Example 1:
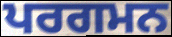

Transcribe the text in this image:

ਪਰਗਮਨ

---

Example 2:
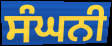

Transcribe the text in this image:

ਸੰਘਨੀ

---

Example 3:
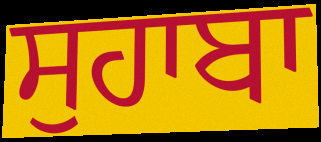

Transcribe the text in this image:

ਸੁਹਾਬਾ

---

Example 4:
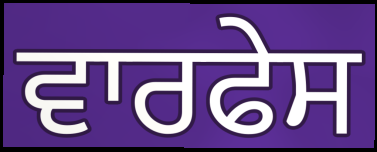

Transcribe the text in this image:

ਵਾਰਫੇਸ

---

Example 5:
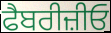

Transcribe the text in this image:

ਫੈਬਰੀਜ਼ੀਓ